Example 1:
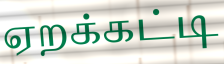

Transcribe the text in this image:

ஏறக்கட்டி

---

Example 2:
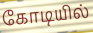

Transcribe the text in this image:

கோடியில்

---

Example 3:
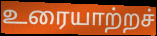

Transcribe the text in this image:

உரையாற்றச்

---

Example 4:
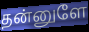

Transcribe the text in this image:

தன்னுளே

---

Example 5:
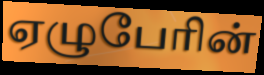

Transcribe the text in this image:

ஏழுபேரின்